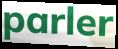
parler